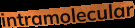
intramolecular